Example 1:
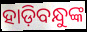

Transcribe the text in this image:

ହାଡ଼ିବନ୍ଧୁଙ୍କ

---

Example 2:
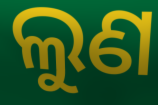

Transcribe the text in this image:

ଲୁଣ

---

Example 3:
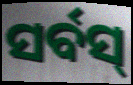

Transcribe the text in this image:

ସର୍ବସ୍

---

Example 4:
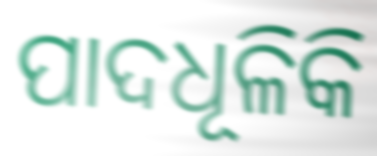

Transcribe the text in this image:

ପାଦଧୂଳିକି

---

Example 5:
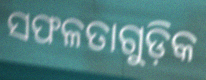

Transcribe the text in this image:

ସଫଳତାଗୁଡ଼ିକ